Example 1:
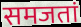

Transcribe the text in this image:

समजतां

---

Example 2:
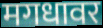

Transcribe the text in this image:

मगधावर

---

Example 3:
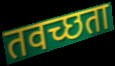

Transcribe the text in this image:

तवच्छता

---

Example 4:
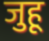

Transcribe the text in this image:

जुहू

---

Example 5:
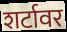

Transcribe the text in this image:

शर्टावर